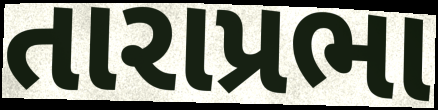
તારાપ્રભા